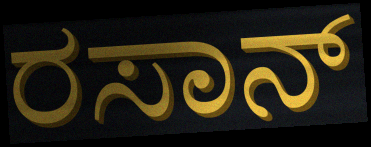
ರಸಾನ್